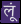
लूं